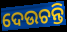
ଦେଉଚନ୍ତି